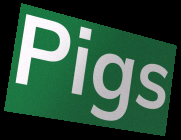
Pigs